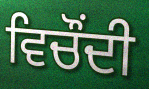
ਵਿਚੌਂਦੀ